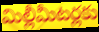
మిల్లీమీటర్లకు